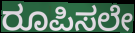
ರೂಪಿಸಲೇ